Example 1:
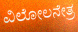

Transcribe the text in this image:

ವಿಲೋಲನೇತ್ರ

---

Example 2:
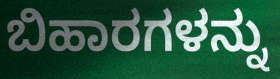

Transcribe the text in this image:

ಬಿಹಾರಗಳನ್ನು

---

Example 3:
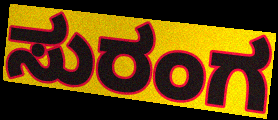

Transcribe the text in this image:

ಸುರಂಗ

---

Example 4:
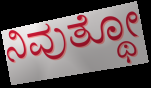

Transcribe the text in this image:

ನಿವುತ್ಥೋ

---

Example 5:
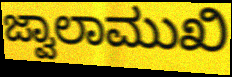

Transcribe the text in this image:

ಜ್ವಾಲಾಮುಖಿ